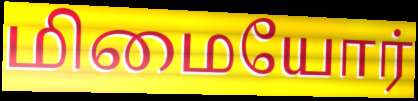
மிமையோர்